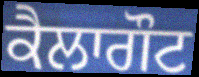
ਕੈਲਾਗੌਟ